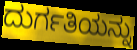
ದುರ್ಗತಿಯನ್ನು